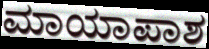
ಮಾಯಾಪಾಶ